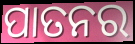
ପାତନର